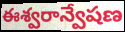
ఈశ్వరాన్వేషణ